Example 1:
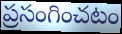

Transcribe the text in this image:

ప్రసంగించటం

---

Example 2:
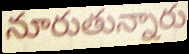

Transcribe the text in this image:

నూరుతున్నారు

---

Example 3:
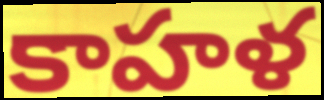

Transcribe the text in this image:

కాహళ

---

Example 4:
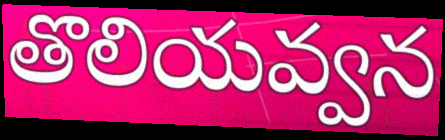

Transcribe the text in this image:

తొలియవ్వన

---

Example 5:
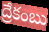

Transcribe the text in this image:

ద్రేకంబు